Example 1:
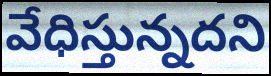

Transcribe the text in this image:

వేధిస్తున్నదని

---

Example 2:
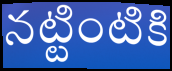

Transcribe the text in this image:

నట్టింటికి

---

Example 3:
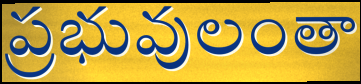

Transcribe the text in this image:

ప్రభువులంతా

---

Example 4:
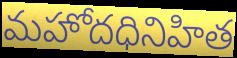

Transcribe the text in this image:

మహోదధినిహిత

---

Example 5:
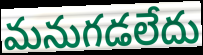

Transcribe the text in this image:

మనుగడలేదు